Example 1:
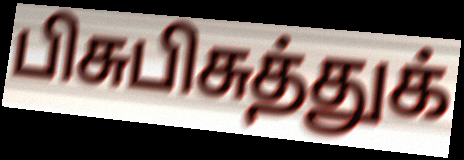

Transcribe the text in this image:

பிசுபிசுத்துக்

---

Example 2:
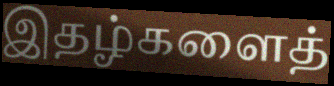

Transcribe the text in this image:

இதழ்களைத்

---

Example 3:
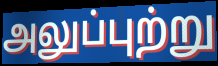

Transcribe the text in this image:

அலுப்புற்று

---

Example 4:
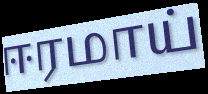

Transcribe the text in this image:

ஈரமாய்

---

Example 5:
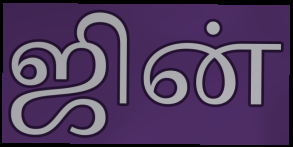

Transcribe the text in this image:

ஜின்